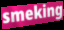
smeking